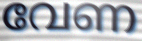
വേണ